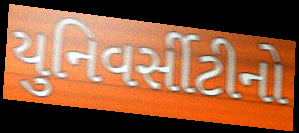
યુનિવર્સીટીનો